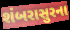
શંબરાસુરના